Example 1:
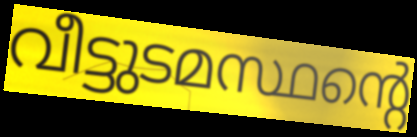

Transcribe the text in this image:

വീട്ടുടമസ്ഥന്റെ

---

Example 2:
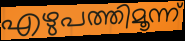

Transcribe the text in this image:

എഴുപത്തിമൂന്ന്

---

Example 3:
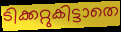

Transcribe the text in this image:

ടിക്കറ്റുകിട്ടാതെ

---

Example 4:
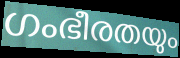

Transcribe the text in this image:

ഗംഭീരതയും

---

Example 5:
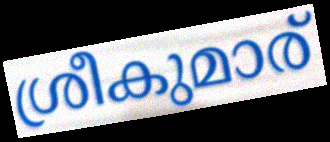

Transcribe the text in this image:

ശ്രീകുമാര്